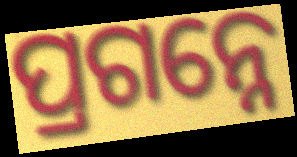
ପ୍ରଗନ୍ନେ